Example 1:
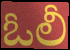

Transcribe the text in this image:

ఓలీ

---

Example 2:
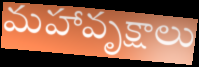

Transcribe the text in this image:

మహావృక్షాలు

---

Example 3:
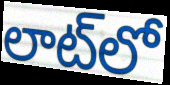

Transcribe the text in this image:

లాట్‌లో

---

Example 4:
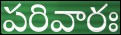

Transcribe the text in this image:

పరివారః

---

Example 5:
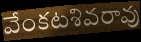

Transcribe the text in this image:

వేంకటశివరావు